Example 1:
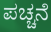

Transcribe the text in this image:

ಪಚ್ಚನೆ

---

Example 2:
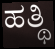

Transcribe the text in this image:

ಹತ್ಥಿ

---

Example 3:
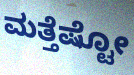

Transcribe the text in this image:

ಮತ್ತೆಷ್ಟೋ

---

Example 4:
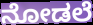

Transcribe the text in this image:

ನೋಡಲೆ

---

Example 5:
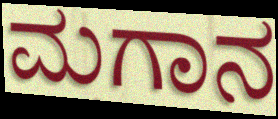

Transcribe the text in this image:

ಮಗಾನ